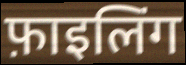
फ़ाइलिंग